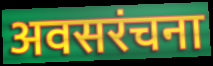
अवसरंचना